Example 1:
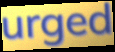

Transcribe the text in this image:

urged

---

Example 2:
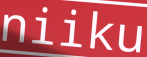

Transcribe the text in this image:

niiku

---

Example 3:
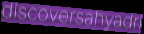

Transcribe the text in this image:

discoversahyadri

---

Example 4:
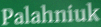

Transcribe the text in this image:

Palahniuk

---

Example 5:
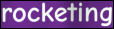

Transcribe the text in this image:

rocketing